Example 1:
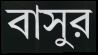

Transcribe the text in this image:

বাসুর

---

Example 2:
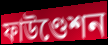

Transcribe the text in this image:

ফাউণ্ডেশন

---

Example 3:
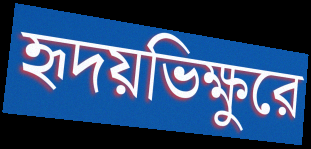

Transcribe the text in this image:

হৃদয়ভিক্ষুরে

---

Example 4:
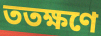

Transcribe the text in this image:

ততক্ষণে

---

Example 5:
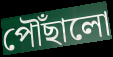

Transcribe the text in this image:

পৌঁছালো